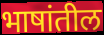
भाषांतील